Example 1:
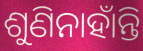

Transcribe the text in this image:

ଶୁଣିନାହାଁନ୍ତି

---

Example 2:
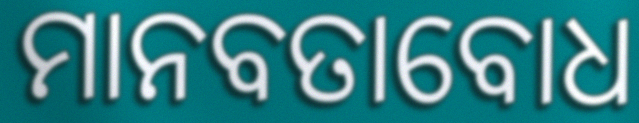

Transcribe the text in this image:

ମାନବତାବୋଧ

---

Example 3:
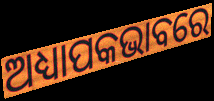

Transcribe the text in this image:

ଅଧ୍ୟାପକଭାବରେ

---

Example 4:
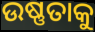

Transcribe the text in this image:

ଉଷ୍ଣତାକୁ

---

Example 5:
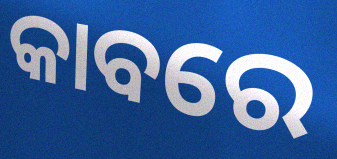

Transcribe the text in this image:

କାବରେ